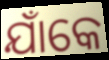
ଯାଁକେ